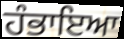
ਹੰਭਾਇਆ